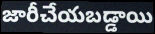
జారీచేయబడ్డాయి